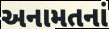
અનામતનાં